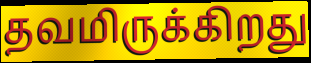
தவமிருக்கிறது